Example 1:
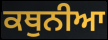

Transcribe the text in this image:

ਕਥੁਨੀਆ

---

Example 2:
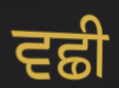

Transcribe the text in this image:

ਵਛੀ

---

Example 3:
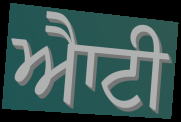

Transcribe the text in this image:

ਐਾਟੀ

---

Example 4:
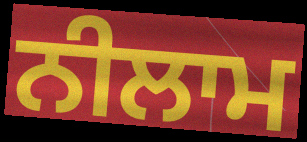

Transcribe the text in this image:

ਨੀਲਾਮ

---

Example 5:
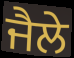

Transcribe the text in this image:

ਜੈਲੇ